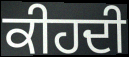
ਕੀਹਦੀ